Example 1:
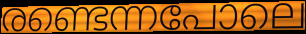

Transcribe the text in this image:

രണ്ടെന്നപോലെ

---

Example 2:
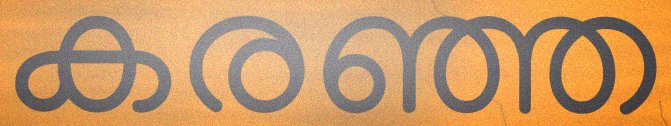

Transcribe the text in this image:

കരഞ്ഞ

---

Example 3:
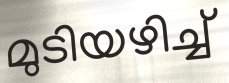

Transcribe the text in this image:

മുടിയഴിച്ച്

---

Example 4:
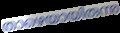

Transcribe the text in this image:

താഴെയായിരുന്നു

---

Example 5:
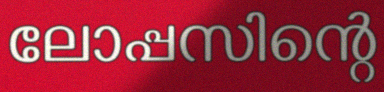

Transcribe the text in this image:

ലോപ്പസിന്റെ